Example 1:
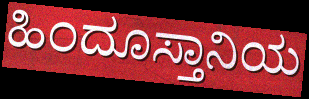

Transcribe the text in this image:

ಹಿಂದೂಸ್ತಾನಿಯ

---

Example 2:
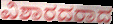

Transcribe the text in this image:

ವಿಶಾರದರಾದ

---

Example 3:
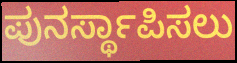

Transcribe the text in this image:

ಪುನರ್ಸ್ಥಾಪಿಸಲು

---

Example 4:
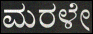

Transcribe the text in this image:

ಮರಳೇ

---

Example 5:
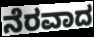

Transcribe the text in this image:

ನೆರವಾದ